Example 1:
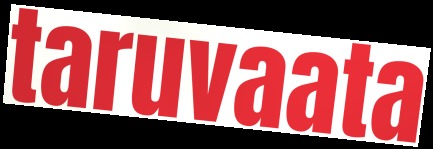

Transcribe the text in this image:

taruvaata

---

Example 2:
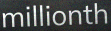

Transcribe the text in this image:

millionth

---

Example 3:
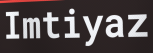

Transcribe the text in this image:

Imtiyaz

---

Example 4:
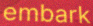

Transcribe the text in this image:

embark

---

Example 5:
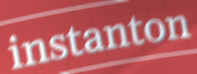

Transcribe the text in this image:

instanton